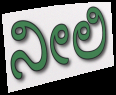
ನೀಲಿ